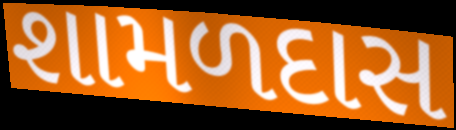
શામળદાસ